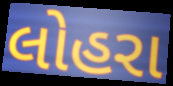
લોહરા